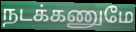
நடக்கணுமே